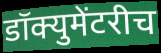
डॉक्युमेंटरीच